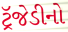
ટ્રૅજેડીનો